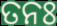
ତନଃ